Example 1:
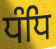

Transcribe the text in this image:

ਧੰਧਿ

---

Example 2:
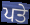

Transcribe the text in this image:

ਪਤੇ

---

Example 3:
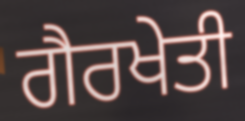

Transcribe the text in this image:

ਗੈਰਖੇਤੀ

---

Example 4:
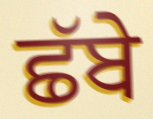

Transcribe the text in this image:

ਛੱਬੇ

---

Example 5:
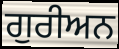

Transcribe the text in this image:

ਗੁਰੀਅਨ